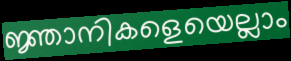
ജ്ഞാനികളെയെല്ലാം